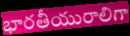
భారతీయురాలిగా